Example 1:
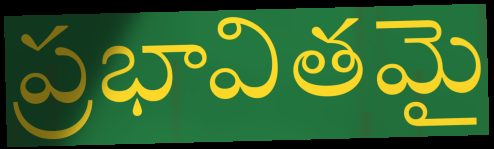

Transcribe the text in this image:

ప్రభావితమై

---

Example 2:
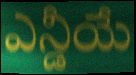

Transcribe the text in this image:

ఎన్డీయే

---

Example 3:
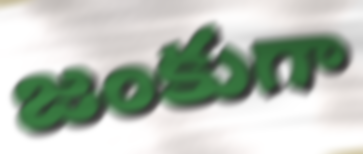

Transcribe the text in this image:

జంకుగా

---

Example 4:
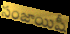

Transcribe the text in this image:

సంజాయిషీ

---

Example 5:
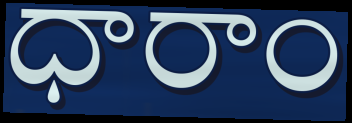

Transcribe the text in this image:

ధారాం